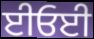
ਈਓਈ